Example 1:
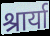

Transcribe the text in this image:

श्रार्या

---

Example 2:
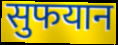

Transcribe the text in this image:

सुफयान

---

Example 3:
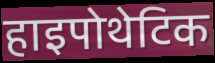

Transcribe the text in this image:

हाइपोथेटिक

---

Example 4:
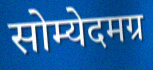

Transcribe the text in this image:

सोम्येदमग्र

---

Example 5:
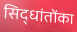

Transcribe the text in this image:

सिद्धांतोंका